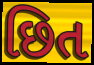
છિત